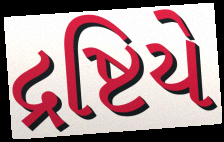
દ્રષ્ટિયે